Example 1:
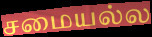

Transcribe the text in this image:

சமையல்ல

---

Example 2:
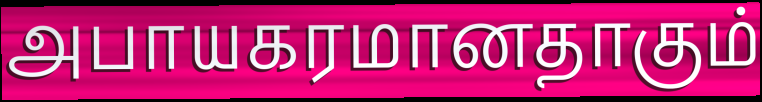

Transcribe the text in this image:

அபாயகரமானதாகும்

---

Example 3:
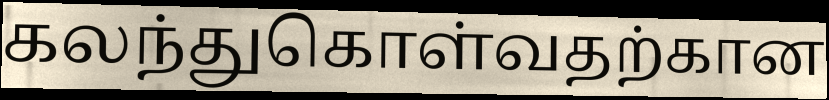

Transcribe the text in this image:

கலந்துகொள்வதற்கான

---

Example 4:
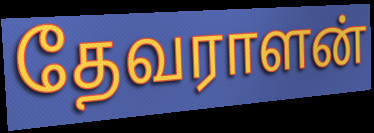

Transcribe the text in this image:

தேவராளன்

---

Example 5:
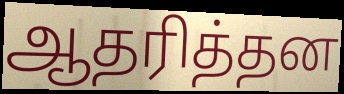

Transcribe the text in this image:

ஆதரித்தன